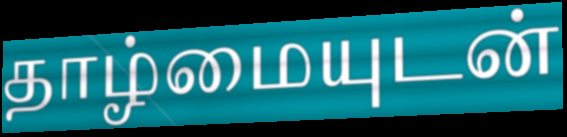
தாழ்மையுடன்